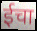
ईचा